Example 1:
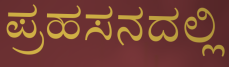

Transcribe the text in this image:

ಪ್ರಹಸನದಲ್ಲಿ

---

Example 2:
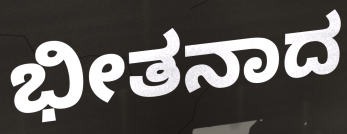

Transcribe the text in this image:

ಭೀತನಾದ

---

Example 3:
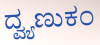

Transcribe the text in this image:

ದ್ವ್ಯಣುಕಂ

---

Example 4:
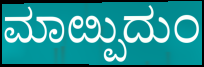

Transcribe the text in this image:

ಮಾೞ್ಪುದುಂ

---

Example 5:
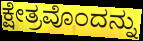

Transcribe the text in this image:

ಕ್ಷೇತ್ರವೊಂದನ್ನು